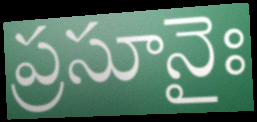
ప్రసూనైః